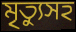
মৃত্যুসহ